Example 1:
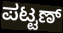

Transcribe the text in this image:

ಪಟ್ಟಣ್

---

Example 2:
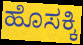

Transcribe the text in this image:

ಹೊಸಕ್ಕಿ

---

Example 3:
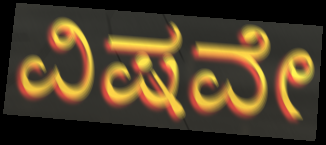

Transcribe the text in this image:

ವಿಷವೇ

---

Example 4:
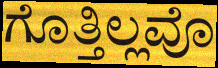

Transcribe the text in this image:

ಗೊತ್ತಿಲ್ಲವೊ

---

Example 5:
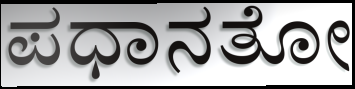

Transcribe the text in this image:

ಪಧಾನತೋ